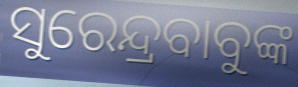
ସୁରେନ୍ଦ୍ରବାବୁଙ୍କ